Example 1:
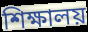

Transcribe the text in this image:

শিক্ষালয়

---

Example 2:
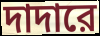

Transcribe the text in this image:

দাদারে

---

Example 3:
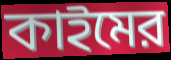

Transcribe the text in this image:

কাইমের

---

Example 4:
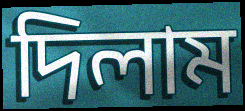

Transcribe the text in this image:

দিলাম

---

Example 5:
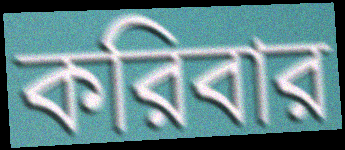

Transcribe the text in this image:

করিবার